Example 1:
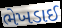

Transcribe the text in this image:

ભેખડાઈ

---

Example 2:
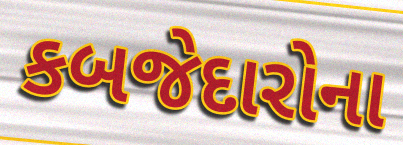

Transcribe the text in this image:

કબજેદારોના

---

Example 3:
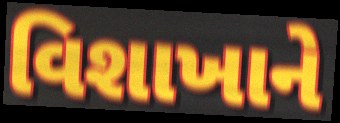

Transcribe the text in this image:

વિશાખાને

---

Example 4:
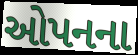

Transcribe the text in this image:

ઓપનના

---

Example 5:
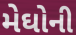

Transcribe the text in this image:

મેઘોની